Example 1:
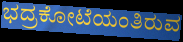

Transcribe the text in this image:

ಭದ್ರಕೋಟೆಯಂತಿರುವ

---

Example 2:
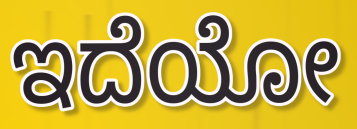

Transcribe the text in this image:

ಇದೆಯೋ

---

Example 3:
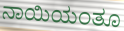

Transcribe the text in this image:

ನಾಯಿಯಂತೂ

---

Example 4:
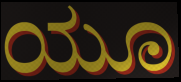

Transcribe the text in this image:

ಯೂ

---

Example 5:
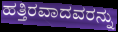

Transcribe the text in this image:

ಹತ್ತಿರವಾದವರನ್ನು